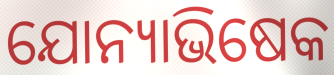
ଯୋନ୍ୟାଭିଷେକ